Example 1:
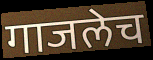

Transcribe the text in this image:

गाजलेच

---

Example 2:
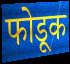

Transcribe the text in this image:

फोडूक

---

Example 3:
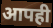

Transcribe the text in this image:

आपही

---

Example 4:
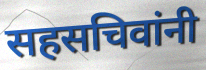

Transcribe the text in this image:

सहसचिवांनी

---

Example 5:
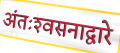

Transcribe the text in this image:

अंतःश्वसनाद्वारे